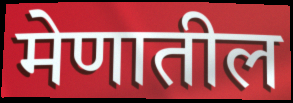
मेणातील